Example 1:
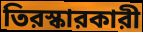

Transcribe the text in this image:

তিরস্কারকারী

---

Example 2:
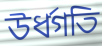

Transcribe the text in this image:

উর্ধগতি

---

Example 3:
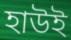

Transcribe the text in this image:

হাউই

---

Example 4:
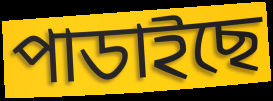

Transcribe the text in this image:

পাডাইছে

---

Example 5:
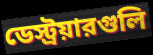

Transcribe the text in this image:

ডেস্ট্রয়ারগুলি